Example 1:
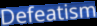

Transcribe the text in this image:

Defeatism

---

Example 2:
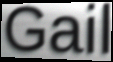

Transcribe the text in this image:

Gail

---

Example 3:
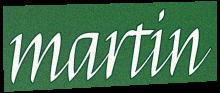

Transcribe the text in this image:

martin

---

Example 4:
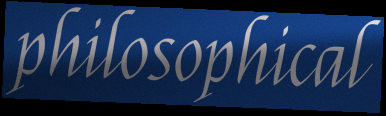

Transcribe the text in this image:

philosophical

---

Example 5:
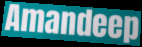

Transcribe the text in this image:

Amandeep